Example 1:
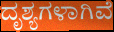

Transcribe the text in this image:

ದೃಶ್ಯಗಳಾಗಿವೆ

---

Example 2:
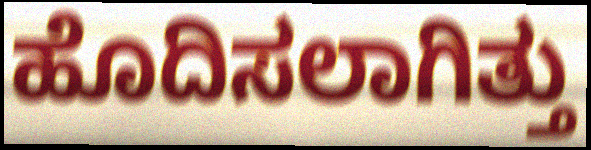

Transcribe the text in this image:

ಹೊದಿಸಲಾಗಿತ್ತು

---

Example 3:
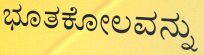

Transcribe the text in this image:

ಭೂತಕೋಲವನ್ನು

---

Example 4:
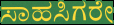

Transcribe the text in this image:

ಸಾಹಸಿಗರೇ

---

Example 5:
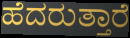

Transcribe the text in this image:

ಹೆದರುತ್ತಾರೆ